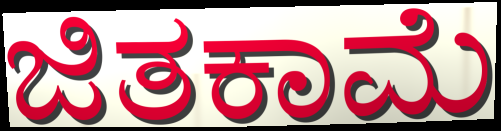
ಜಿತಕಾಮೆ